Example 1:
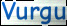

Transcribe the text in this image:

Vurgu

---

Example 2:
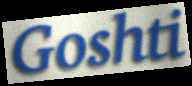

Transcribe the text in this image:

Goshti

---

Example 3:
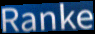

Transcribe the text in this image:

Ranke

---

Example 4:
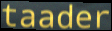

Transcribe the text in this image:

taader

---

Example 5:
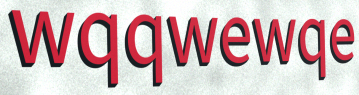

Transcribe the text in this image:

wqqwewqe